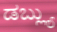
ಡಬ್ಲ್ಯು